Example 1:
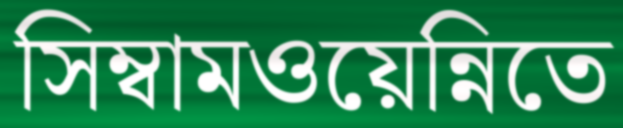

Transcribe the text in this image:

সিম্বামওয়েন্নিতে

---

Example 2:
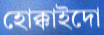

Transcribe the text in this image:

হোক্কাইদো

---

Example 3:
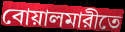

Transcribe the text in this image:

বোয়ালমারীতে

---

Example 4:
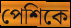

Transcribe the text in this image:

পেশিকে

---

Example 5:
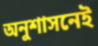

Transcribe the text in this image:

অনুশাসনেই